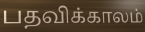
பதவிக்காலம்